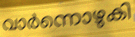
വാർന്നൊഴുകി